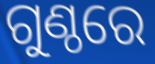
ଗୁଣ୍ଠରେ